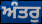
ਅੰਤਰੁ